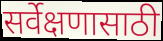
सर्वेक्षणासाठी